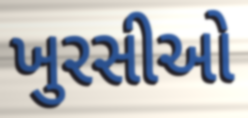
ખુરસીઓ